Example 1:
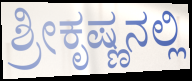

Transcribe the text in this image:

ಶ್ರೀಕೃಷ್ಣನಲ್ಲಿ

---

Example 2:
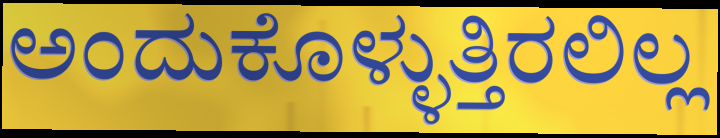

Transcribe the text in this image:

ಅಂದುಕೊಳ್ಳುತ್ತಿರಲಿಲ್ಲ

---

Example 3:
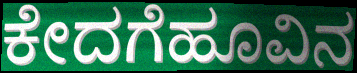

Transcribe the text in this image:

ಕೇದಗೆಹೂವಿನ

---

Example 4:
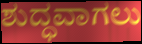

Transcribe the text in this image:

ಶುದ್ಧವಾಗಲು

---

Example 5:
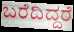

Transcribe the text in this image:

ಬರೆದಿದ್ದರೆ